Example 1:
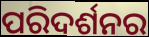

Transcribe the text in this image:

ପରିଦର୍ଶନର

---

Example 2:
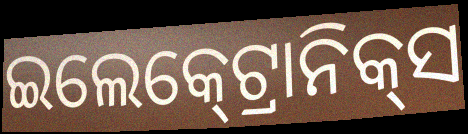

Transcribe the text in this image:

ଇଲେକ୍‍ଟ୍ରୋନିକ୍‍ସ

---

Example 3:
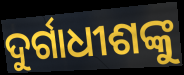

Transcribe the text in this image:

ଦୁର୍ଗାଧୀଶଙ୍କୁ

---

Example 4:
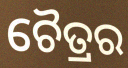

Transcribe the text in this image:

ଚୈତ୍ରର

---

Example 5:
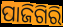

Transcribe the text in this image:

ପାଜିଗିରି